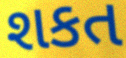
શકત